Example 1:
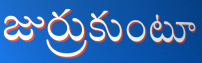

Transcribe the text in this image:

జుర్రుకుంటూ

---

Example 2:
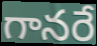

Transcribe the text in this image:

గానరే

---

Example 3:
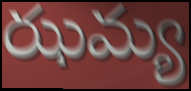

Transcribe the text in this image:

ఝమ్య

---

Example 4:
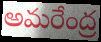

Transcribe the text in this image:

అమరేంద్ర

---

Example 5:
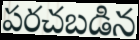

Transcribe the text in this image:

పరచబడిన